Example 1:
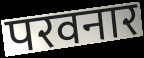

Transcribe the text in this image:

परवनार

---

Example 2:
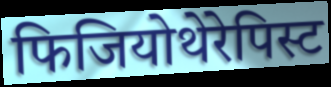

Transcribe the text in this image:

फिजियोथेरेपिस्ट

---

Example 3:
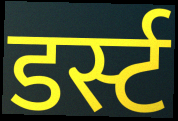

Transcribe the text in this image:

डर्स्ट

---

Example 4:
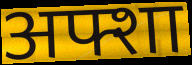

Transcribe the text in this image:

अफ्शा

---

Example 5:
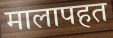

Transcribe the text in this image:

मालापहत